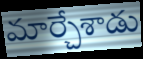
మార్చేశాడు